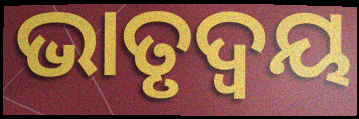
ଭାତୃଦ୍ବୟ